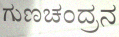
ಗುಣಚಂದ್ರನ